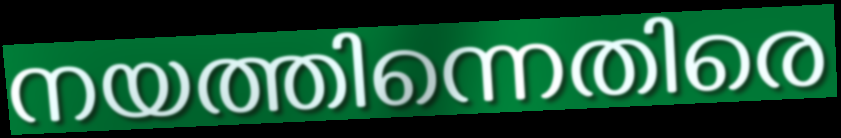
നയത്തിന്നെതിരെ